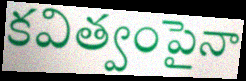
కవిత్వంపైనా